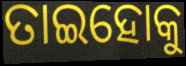
ତାଇହୋକୁ